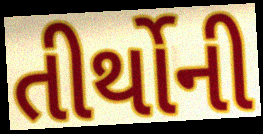
તીર્થોની